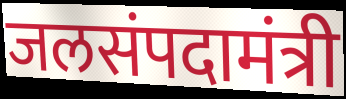
जलसंपदामंत्री